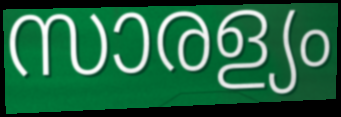
സാരള്യം